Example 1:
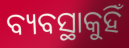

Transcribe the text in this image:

ବ୍ୟବସ୍ଥାକୁହିଁ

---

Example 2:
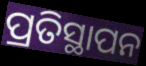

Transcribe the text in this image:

ପ୍ରତିସ୍ଥାପନ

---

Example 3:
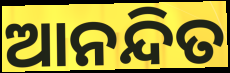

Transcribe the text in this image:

ଆନନ୍ଦିତ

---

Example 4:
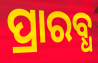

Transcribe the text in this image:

ପ୍ରାରବ୍ଧ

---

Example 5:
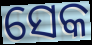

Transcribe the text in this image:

ସେକ